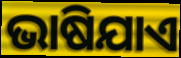
ଭାଷିଯାଏ